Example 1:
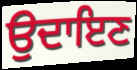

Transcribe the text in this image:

ਉਦਾਇਣ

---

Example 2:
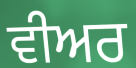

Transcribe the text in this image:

ਵੀਅਰ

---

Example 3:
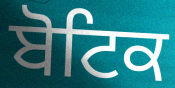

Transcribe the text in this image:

ਬੋਟਿਕ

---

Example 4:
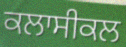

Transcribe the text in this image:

ਕਲਾਸੀਕਲ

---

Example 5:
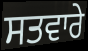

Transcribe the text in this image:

ਸਤਵਾਰੇ